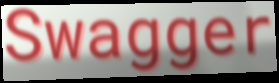
Swagger